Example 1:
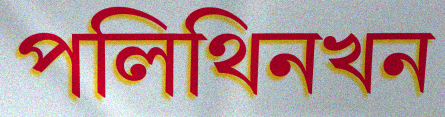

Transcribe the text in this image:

পলিথিনখন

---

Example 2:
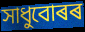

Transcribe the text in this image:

সাধুবোৰৰ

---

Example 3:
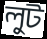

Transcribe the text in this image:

লুট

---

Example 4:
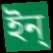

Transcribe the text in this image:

ইন্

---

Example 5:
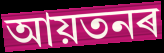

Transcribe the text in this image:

আয়তনৰ